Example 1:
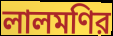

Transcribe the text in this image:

লালমণির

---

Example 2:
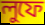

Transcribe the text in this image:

লুফে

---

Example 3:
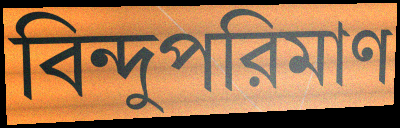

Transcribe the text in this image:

বিন্দুপরিমাণ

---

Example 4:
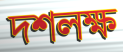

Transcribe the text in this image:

দশলক্ষ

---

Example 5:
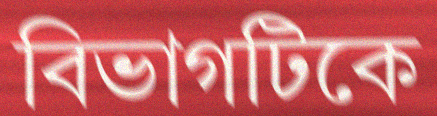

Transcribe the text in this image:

বিভাগটিকে